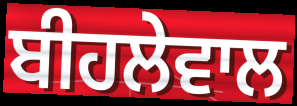
ਬੀਹਲੇਵਾਲ